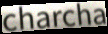
charcha